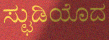
ಸ್ಟುಡಿಯೊದ